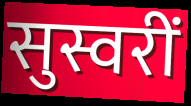
सुस्वरीं